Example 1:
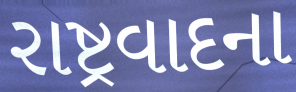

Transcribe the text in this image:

રાષ્ટ્રવાદના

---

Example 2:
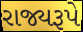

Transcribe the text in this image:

રાજ્યરૂપે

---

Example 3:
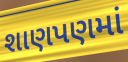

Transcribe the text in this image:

શાણપણમાં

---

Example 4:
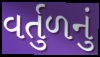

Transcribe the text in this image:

વર્તુળનું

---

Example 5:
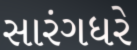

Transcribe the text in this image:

સારંગધરે